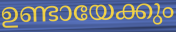
ഉണ്ടായേക്കും